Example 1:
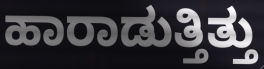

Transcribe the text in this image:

ಹಾರಾಡುತ್ತಿತ್ತು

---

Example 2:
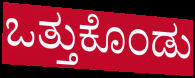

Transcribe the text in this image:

ಒತ್ತುಕೊಂಡು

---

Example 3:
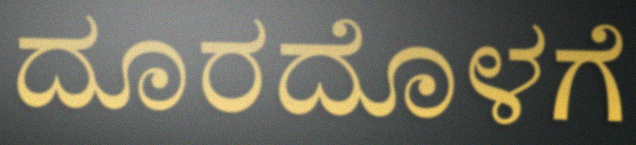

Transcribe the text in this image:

ದೂರದೊಳಗೆ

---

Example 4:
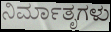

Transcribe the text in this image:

ನಿರ್ಮಾತೃಗಳು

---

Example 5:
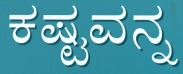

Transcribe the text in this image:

ಕಷ್ಟವನ್ನ